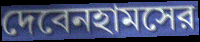
দেবেনহামসের